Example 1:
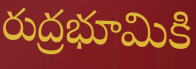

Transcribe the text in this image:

రుద్రభూమికి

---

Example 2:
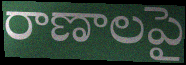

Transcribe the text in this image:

రాణాలపై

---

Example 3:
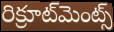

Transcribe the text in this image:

రిక్రూట్‌మెంట్స్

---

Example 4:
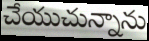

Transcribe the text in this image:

చేయుచున్నాను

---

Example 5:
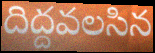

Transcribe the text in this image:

దిద్దవలసిన